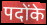
पदोंके